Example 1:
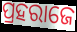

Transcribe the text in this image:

ପ୍ରହରାଜେ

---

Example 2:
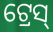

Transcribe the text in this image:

ଟ୍ରେସ୍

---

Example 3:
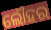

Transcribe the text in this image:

ଲୌହର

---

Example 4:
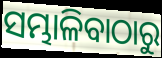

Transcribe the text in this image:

ସମ୍ଭାଳିବାଠାରୁ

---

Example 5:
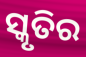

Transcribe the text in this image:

ସ୍କୃତିର